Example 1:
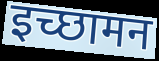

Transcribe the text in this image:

इच्छामन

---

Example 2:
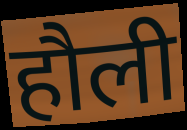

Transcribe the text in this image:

हौली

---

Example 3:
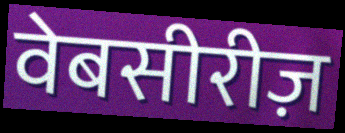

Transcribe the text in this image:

वेबसीरीज़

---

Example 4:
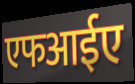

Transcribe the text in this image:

एफआईए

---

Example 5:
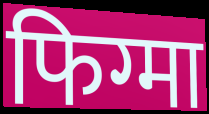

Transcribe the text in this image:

फिग्मा